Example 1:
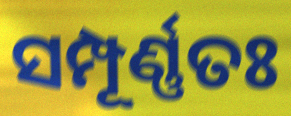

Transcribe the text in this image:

ସମ୍ପୂର୍ଣ୍ଣତଃ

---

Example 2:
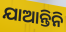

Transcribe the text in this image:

ଯାଆନ୍ତିନି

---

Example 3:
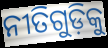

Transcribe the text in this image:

ନୀତିଗୁଡ଼ିକୁ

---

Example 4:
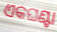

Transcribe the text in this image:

ଏକଘଣ୍ଟା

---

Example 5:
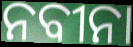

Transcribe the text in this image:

ନବୀନା